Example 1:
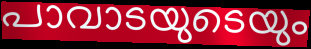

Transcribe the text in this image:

പാവാടയുടെയും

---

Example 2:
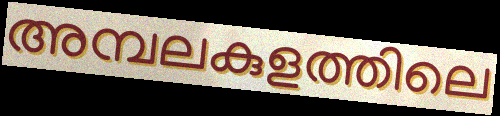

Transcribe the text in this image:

അമ്പലകുളത്തിലെ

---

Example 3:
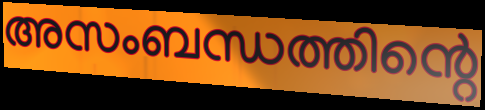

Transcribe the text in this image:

അസംബന്ധത്തിന്റെ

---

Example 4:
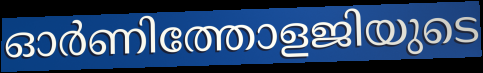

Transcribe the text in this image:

ഓർണിത്തോളജിയുടെ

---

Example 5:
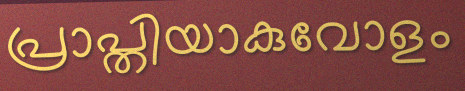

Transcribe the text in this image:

പ്രാപ്തിയാകുവോളം